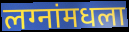
लग्नांमधला